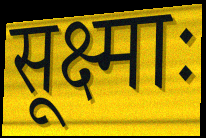
सूक्ष्माः